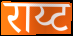
राय्ट